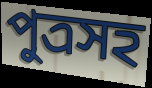
পুত্রসহ